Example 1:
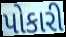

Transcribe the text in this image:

પોકારી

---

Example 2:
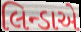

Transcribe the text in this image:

લિન્ડાએ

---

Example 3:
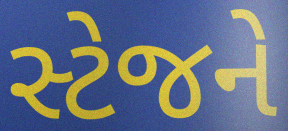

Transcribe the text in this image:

સ્ટેજને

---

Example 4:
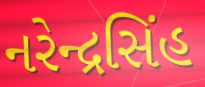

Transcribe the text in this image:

નરેન્દ્રસિંહ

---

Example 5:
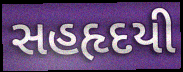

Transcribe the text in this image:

સહહૃદયી